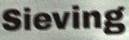
Sieving